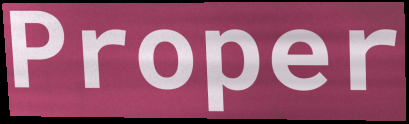
Proper